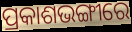
ପ୍ରକାଶଭଙ୍ଗୀରେ